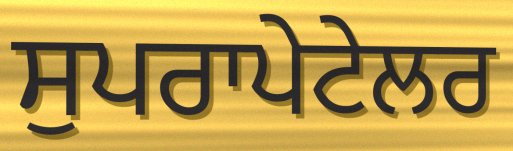
ਸੁਪਰਾਪੇਟੇਲਰ